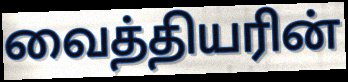
வைத்தியரின்